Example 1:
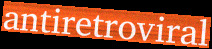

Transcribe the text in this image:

antiretroviral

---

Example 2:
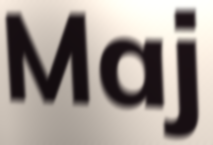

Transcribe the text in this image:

Maj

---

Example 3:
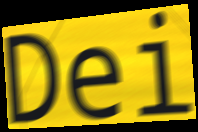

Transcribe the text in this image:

Dei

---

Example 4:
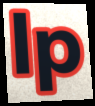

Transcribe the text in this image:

lp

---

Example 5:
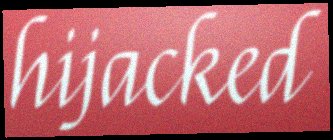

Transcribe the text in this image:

hijacked